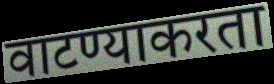
वाटण्याकरता